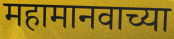
महामानवाच्या